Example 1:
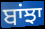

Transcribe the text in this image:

ਬਾਂਝਾ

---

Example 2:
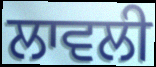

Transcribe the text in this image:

ਲਾਵਲੀ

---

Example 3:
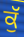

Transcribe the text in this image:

ਕੁੱ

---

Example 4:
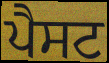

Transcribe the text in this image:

ਪੈਸਟ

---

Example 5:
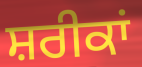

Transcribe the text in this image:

ਸ਼ਰੀਕਾਂ